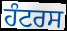
ਹੰਟਰਸ